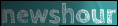
newshour